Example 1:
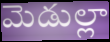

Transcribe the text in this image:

మెడుల్లా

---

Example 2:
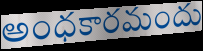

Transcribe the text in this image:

అంధకారమందు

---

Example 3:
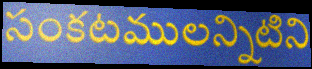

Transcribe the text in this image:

సంకటములన్నిటిని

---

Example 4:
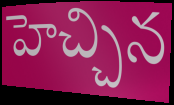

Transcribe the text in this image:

హెచ్చిన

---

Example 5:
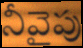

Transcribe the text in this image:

నీవైపు